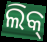
ଲିକ୍